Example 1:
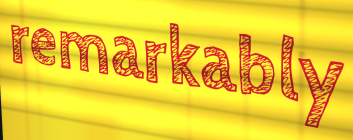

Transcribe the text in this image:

remarkably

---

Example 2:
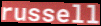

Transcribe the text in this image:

russell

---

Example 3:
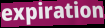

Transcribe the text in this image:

expiration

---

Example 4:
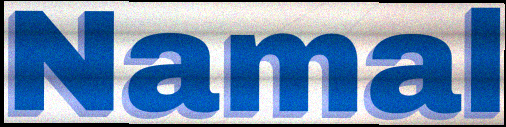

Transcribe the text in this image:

Namal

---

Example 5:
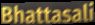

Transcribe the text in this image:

Bhattasali